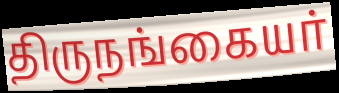
திருநங்கையர்